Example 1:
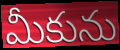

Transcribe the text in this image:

మీకును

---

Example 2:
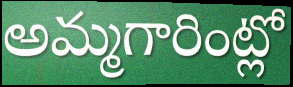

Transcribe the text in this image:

అమ్మగారింట్లో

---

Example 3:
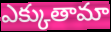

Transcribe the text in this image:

ఎక్కుతామా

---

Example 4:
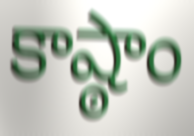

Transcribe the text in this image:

కాష్ఠాం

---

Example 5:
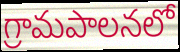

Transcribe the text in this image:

గ్రామపాలనలో